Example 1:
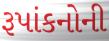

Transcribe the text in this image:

રૂપાંકનોની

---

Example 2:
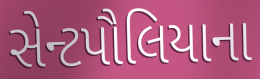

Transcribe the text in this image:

સેન્ટપૌલિયાના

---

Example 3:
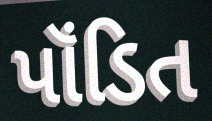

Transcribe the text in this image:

પૉંડિત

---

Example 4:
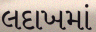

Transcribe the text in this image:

લદાખમાં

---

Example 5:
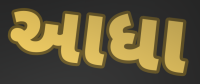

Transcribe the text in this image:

આધા